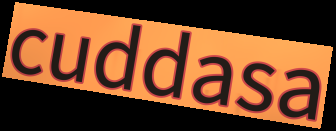
cuddasa